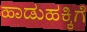
ಹಾಡುಹಕ್ಕಿಗೆ